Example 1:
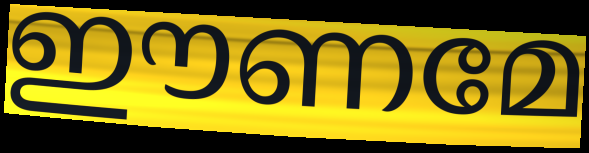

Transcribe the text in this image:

ഈണമേ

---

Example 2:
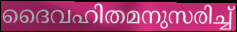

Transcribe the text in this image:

ദൈവഹിതമനുസരിച്ച്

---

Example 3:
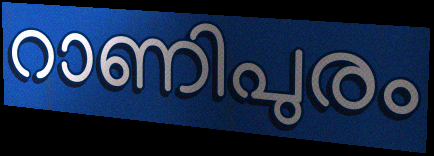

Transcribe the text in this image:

റാണിപുരം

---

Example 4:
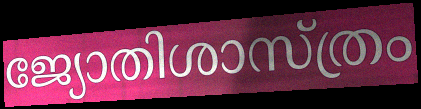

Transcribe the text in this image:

ജ്യോതിശാസ്ത്രം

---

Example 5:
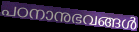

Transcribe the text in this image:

പഠനാനുഭവങ്ങൾ